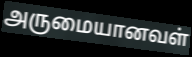
அருமையானவள்